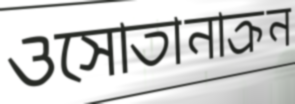
ওসোতানাক্রন